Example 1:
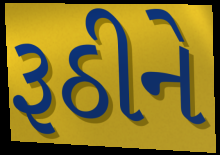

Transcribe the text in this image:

રૂઠીને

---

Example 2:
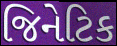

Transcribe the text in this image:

જિનેટિક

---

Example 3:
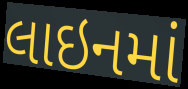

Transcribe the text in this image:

લાઇનમાં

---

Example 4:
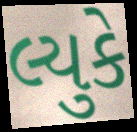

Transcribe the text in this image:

લ્યુકે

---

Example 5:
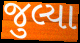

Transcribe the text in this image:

જુલ્યા